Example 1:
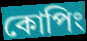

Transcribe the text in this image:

কোপিং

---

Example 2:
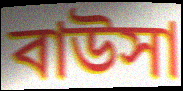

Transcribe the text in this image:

বাউসা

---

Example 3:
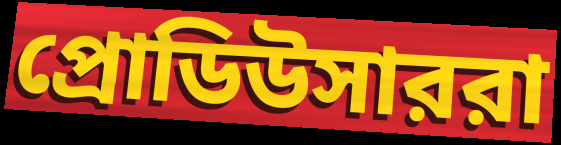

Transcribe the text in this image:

প্রোডিউসাররা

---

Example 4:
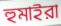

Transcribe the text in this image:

হুমাইরা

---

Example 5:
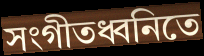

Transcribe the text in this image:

সংগীতধ্বনিতে